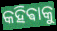
କହିଵାକୁ